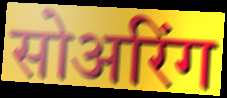
सोअरिंग